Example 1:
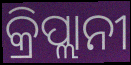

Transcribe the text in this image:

କ୍ରିପ୍ଲାନୀ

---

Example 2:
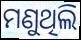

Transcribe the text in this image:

ମଣୁଥିଲି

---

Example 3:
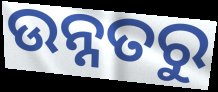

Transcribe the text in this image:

ଉନ୍ନତରୁ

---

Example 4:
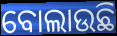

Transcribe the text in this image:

ବୋଲାଉଛି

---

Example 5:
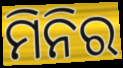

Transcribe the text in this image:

ମିନିର